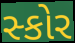
સ્કોર